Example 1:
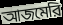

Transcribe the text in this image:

আজমেরি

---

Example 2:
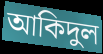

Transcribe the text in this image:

আকিদুল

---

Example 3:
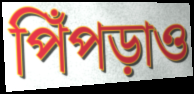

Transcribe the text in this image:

পিঁপড়াও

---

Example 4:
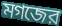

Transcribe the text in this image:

মগজের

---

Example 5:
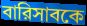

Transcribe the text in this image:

বারিসাবকে